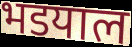
भडयाल